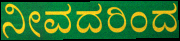
ನೀವದರಿಂದ